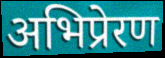
अभिप्रेरण